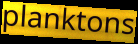
planktons